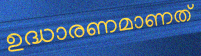
ഉദ്ധാരണമാണത്